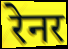
रेनर